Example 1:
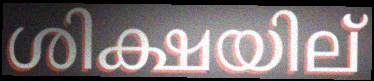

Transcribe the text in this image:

ശിക്ഷയില്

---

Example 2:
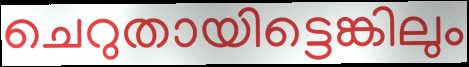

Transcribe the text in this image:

ചെറുതായിട്ടെങ്കിലും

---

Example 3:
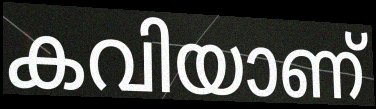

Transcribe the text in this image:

കവിയാണ്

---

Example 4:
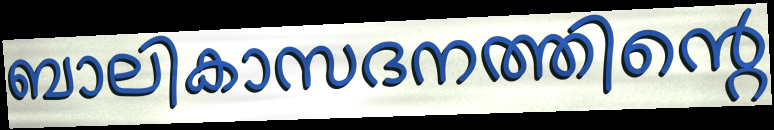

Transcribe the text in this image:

ബാലികാസദനത്തിന്റെ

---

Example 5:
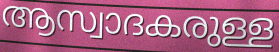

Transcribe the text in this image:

ആസ്വാദകരുള്ള